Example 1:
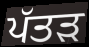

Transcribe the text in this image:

ਪੱਤਡ਼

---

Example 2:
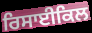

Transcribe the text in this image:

ਰਿਸਾਈਕਿਲ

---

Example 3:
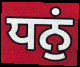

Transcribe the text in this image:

ਧਨੁਂ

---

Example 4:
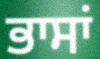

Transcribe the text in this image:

ਭਾਸਾਂ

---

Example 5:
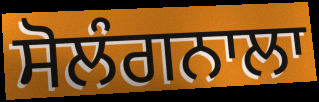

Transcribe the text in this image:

ਸੋਲੰਗਨਾਲਾ